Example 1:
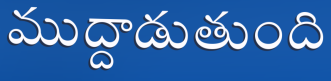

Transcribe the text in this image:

ముద్దాడుతుంది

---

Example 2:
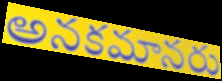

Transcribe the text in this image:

అనకమానరు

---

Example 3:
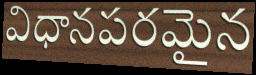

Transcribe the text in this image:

విధానపరమైన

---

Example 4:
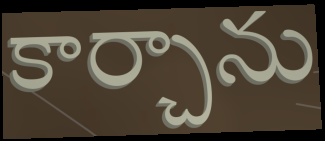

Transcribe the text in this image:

కార్చాను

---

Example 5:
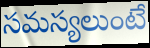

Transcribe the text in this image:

సమస్యలుంటే